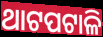
ଥାଟପଟାଳି